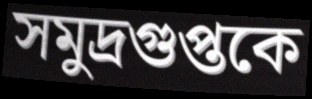
সমুদ্রগুপ্তকে